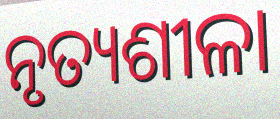
ନୃତ୍ୟଶୀଳା